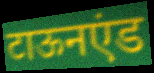
टाऊनएंड